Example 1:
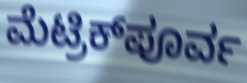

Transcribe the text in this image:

ಮೆಟ್ರಿಕ್‌ಪೂರ್ವ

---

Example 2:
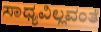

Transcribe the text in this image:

ಸಾಧ್ಯವಿಲ್ಲವಂತೆ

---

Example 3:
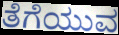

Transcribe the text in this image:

ತೆಗೆಯುವ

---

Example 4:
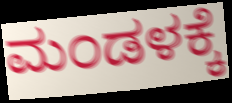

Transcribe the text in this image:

ಮಂಡಳಕ್ಕೆ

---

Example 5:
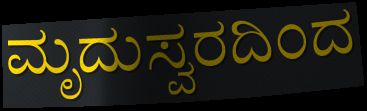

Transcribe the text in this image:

ಮೃದುಸ್ವರದಿಂದ